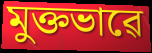
মুক্তভাৱে